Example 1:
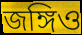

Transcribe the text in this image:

জঙ্গিও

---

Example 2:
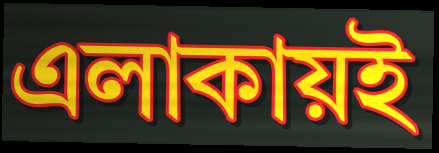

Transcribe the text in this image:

এলাকায়ই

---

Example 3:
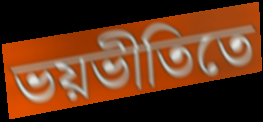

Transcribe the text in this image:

ভয়ভীতিতে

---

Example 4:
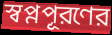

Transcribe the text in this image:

স্বপ্নপূরণের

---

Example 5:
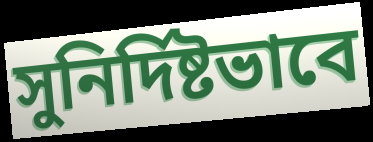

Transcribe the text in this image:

সুনির্দিষ্টভাবে